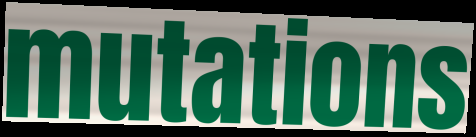
mutations